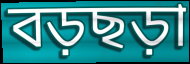
বড়ছড়া